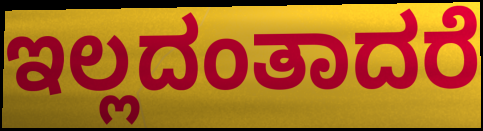
ಇಲ್ಲದಂತಾದರೆ